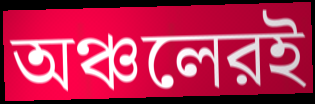
অঞ্চলেরই